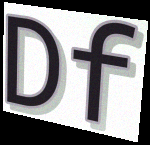
Df